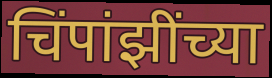
चिंपांझींच्या